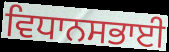
ਵਿਧਾਨਸਭਾਈ